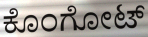
ಕೊಂಗೋಟ್